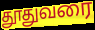
தூதுவரை